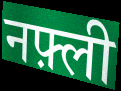
नफ़्ली